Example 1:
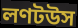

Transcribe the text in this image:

লণটউস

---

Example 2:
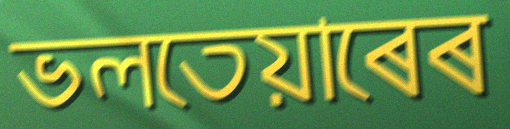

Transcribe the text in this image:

ভলতেয়াৰেৰ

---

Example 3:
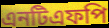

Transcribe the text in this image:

এনটিএফপি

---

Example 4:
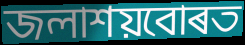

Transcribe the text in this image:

জলাশয়বোৰত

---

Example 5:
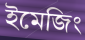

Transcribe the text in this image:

ইমেজিং